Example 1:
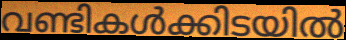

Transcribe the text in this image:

വണ്ടികൾക്കിടയിൽ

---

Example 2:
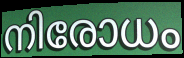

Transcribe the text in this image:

നിരോധം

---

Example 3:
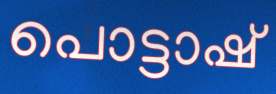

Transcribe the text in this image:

പൊട്ടാഷ്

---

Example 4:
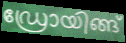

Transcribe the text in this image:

ഡ്രോയിങ്ങ്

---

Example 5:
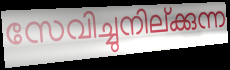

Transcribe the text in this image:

സേവിച്ചുനില്ക്കുന്ന